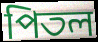
পিতল